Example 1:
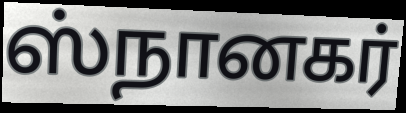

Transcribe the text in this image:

ஸ்நானகர்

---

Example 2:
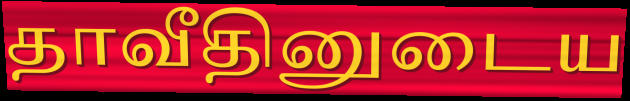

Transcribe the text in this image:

தாவீதினுடைய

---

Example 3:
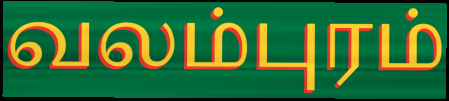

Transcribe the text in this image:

வலம்புரம்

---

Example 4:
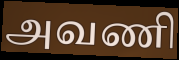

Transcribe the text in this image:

அவணி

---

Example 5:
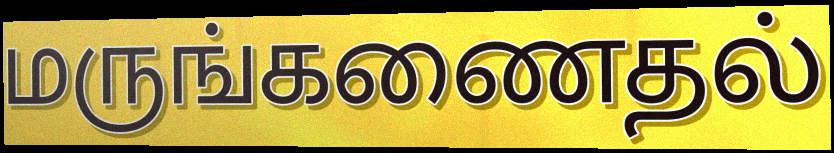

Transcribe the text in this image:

மருங்கணைதல்